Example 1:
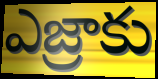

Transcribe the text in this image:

ఎజ్రాకు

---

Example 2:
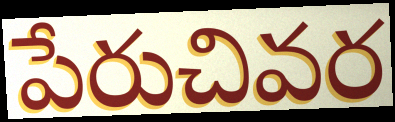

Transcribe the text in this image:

పేరుచివర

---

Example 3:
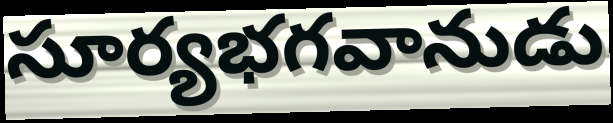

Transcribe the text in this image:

సూర్యభగవానుడు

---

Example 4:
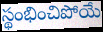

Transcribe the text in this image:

స్థంభించిపోయే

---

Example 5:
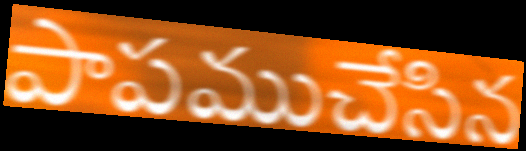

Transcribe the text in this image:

పాపముచేసిన